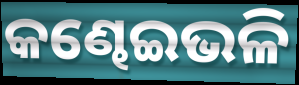
କଣ୍ଢେଇଭଳି